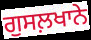
ਗੁਸਲ਼ਖਾਨੇ